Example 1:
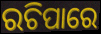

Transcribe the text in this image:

ରଚିପାରେ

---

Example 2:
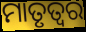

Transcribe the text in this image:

ମାତୃତ୍ୱର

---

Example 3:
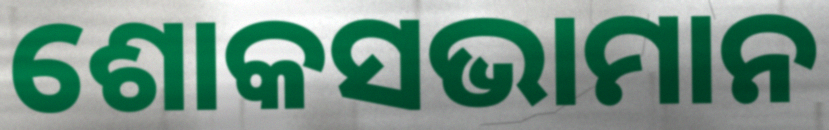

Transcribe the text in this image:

ଶୋକସଭାମାନ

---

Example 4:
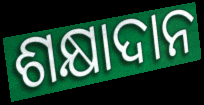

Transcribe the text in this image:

ଶକ୍ଷାଦାନ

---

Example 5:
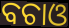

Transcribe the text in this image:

ବଚାଓ